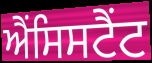
ਐਂਸਿਸਟੈਂਟ